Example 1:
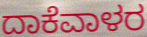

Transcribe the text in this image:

ದಾಕೆವಾಳರ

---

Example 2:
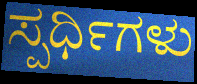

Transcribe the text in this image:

ಸ್ಪರ್ಧಿಗಳು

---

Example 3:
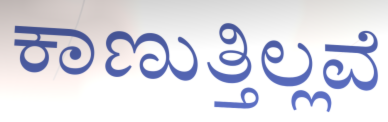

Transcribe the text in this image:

ಕಾಣುತ್ತಿಲ್ಲವೆ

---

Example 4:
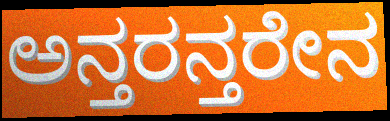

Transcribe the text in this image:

ಅನ್ತರನ್ತರೇನ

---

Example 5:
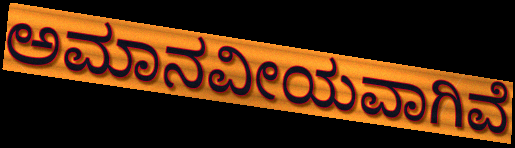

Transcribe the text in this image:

ಅಮಾನವೀಯವಾಗಿವೆ